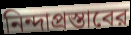
নিন্দাপ্রস্তাবের